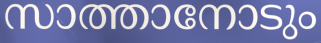
സാത്താനോടും